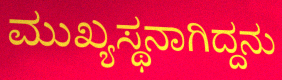
ಮುಖ್ಯಸ್ಥನಾಗಿದ್ದನು